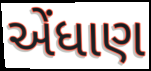
એંધાણ